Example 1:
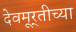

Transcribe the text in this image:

देवमूर्तीच्या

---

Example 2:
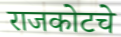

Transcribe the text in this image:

राजकोटचे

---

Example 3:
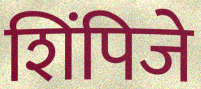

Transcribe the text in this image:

शिंपिजे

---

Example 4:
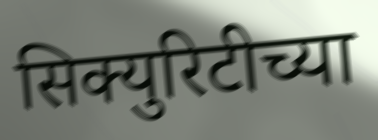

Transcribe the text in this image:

सिक्युरिटीच्या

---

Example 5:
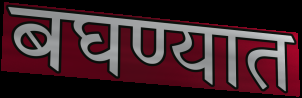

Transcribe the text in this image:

बघण्यात